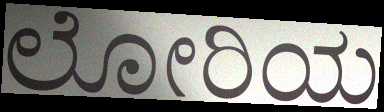
ಲೋರಿಯ